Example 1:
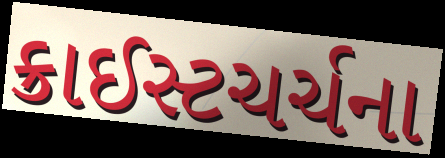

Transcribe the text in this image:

ક્રાઈસ્ટચર્ચના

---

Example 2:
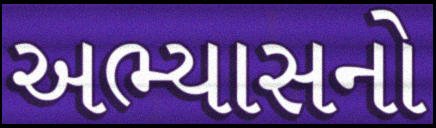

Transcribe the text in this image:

અભ્યાસનો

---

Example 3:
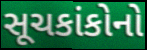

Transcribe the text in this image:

સૂચકાંકોનો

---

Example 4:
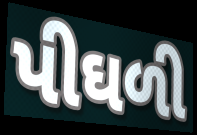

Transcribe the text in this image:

પીઘળી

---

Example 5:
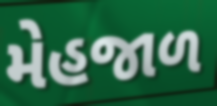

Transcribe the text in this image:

મેહજાળ